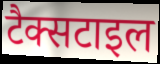
टैक्सटाइल